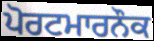
ਪੋਰਟਮਾਰਨੌਕ